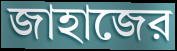
জাহাজের